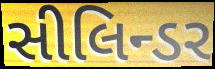
સીલિન્ડર